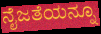
ನೈಜತೆಯನ್ನೂ